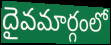
దైవమార్గంలో